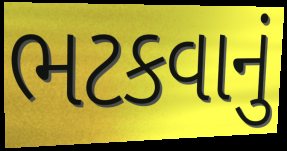
ભટકવાનું